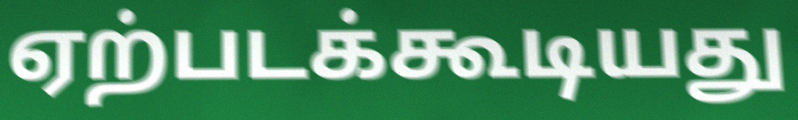
ஏற்படக்கூடியது